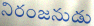
నిరంజనుడు